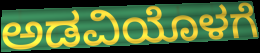
ಅಡವಿಯೊಳಗೆ